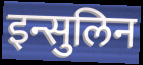
इन्सुलिन